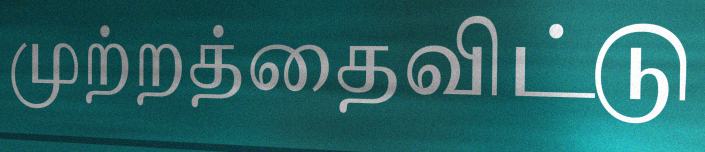
முற்றத்தைவிட்டு